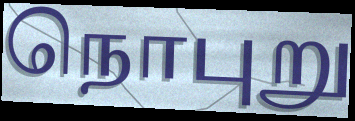
நொபுறு